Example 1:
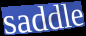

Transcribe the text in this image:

saddle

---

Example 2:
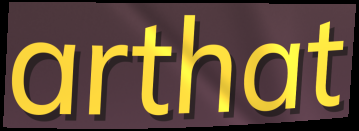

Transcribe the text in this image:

arthat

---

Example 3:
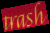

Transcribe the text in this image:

trash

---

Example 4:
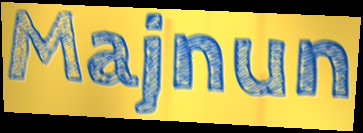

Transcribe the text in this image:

Majnun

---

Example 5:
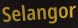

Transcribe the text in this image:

Selangor